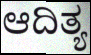
ಆದಿತ್ಯ